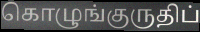
கொழுங்குருதிப்